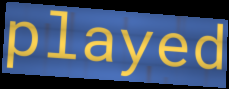
played